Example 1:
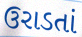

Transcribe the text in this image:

ઉરાડતાં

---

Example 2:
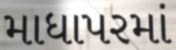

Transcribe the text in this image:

માધાપરમાં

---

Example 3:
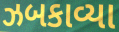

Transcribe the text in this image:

ઝબકાવ્યા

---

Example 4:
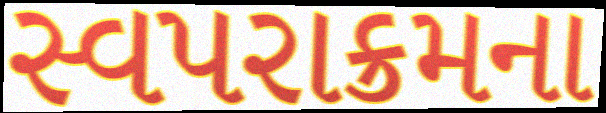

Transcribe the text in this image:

સ્વપરાક્રમના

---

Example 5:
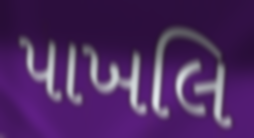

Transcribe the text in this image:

પાખલિ